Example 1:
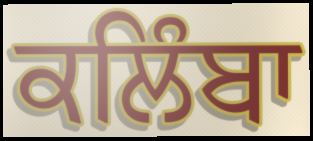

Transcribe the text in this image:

ਕਲਿੰਬਾ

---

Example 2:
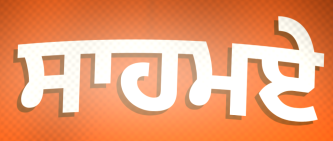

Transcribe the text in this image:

ਸਾਹਮਏ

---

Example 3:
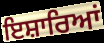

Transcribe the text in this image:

ਇਸ਼ਾਰਿਆਂ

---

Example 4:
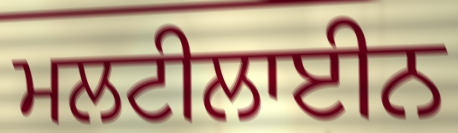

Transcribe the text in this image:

ਮਲਟੀਲਾਈਨ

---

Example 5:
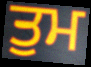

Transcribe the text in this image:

ਤੁਮ